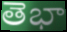
తెభా